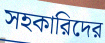
সহকারিদের